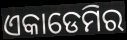
ଏକାଡେମିର